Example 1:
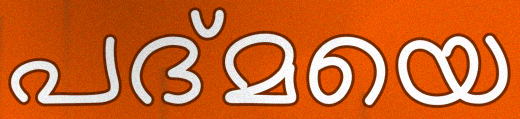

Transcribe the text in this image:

പദ്മയെ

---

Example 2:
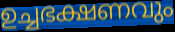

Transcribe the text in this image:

ഉച്ചഭക്ഷണവും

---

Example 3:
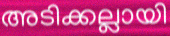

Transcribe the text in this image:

അടിക്കല്ലായി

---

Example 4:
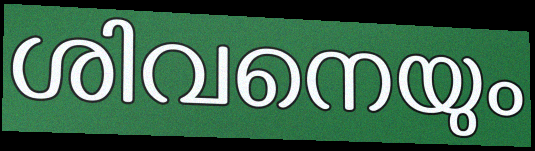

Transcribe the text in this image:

ശിവനെയും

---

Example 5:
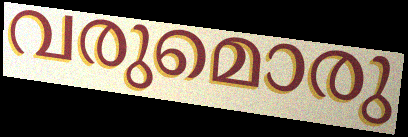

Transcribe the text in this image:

വരുമൊരു